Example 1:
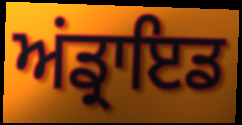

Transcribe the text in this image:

ਅਂਡ੍ਰਾਇਡ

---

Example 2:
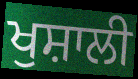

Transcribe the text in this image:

ਖੁਸ਼ਾਲੀ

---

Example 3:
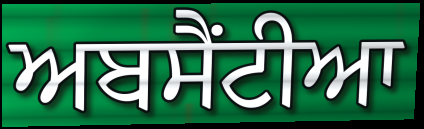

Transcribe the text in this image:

ਅਬਸੈਂਟੀਆ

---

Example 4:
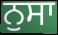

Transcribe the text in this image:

ਨੁਸਾ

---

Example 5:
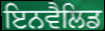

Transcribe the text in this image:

ਇਨਵੈਲਿਡ